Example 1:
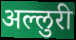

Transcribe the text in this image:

अल्लुरी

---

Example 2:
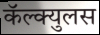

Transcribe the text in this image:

कॅल्क्युलस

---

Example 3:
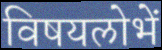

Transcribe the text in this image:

विषयलोभें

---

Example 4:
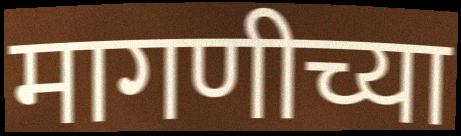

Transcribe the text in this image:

मागणीच्या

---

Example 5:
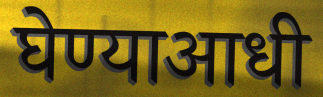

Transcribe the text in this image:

घेण्याआधी